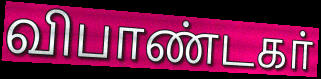
விபாண்டகர்